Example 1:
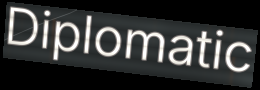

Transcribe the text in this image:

Diplomatic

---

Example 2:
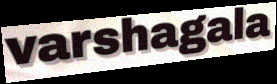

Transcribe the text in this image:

varshagala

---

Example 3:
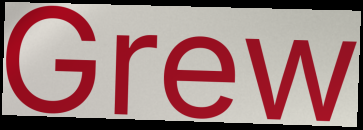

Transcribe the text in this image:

Grew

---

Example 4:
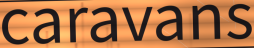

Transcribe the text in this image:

caravans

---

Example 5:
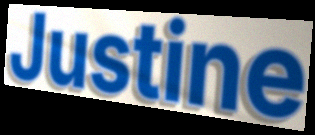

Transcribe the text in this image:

Justine